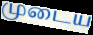
முடைய